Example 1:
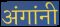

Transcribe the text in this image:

अंगांनी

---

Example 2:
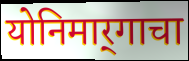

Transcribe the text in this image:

योनिमार्गाचा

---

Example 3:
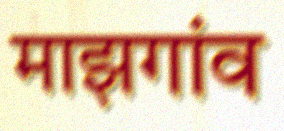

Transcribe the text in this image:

माझगांव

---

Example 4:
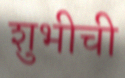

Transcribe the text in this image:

शुभीची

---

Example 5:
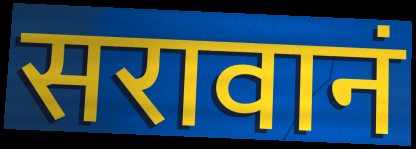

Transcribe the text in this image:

सरावानं